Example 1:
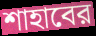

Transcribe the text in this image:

শাহাবের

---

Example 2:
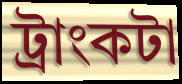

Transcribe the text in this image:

ট্রাংকটা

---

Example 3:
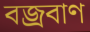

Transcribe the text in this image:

বজ্রবাণ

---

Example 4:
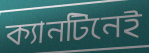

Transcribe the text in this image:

ক্যানটিনেই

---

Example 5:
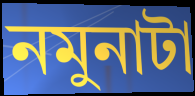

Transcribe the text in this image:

নমুনাটা